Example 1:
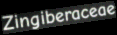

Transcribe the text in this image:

Zingiberaceae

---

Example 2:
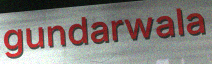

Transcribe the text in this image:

gundarwala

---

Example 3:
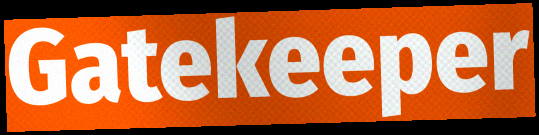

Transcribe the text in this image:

Gatekeeper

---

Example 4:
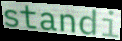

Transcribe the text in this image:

standi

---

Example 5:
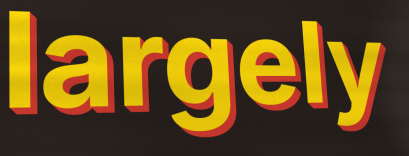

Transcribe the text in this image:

largely